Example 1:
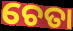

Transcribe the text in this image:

ଚେତା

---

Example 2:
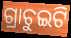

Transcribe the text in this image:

ଗ୍ରାଚୁଇଟି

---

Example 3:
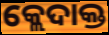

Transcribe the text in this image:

କ୍ଲେଦାକ୍ତ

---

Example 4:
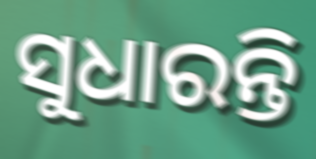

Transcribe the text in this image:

ସୁଧାରନ୍ତି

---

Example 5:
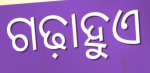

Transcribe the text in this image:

ଗଢ଼ାହୁଏ